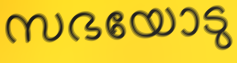
സഭയോടു